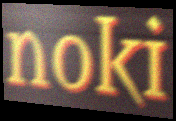
noki